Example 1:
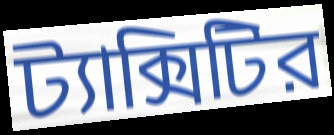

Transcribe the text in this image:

ট্যাক্সিটির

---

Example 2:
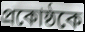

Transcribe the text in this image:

প্রকোষ্ঠকে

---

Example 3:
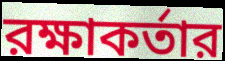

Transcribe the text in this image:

রক্ষাকর্তার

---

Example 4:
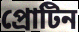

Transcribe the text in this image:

প্রোটিন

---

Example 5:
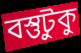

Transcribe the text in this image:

বস্তুটুকু